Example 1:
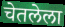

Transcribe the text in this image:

चेतलेला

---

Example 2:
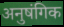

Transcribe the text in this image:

अनुषंगिक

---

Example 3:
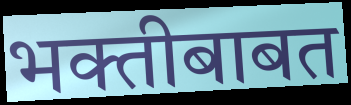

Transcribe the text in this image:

भक्तीबाबत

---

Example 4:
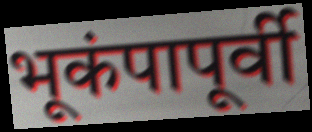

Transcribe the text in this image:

भूकंपापूर्वी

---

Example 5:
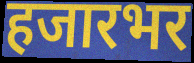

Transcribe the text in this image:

हजारभर